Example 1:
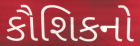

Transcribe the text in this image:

કૌશિકનો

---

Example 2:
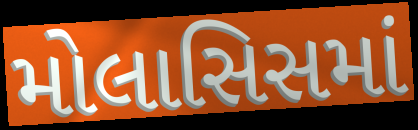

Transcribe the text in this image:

મોલાસિસમાં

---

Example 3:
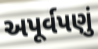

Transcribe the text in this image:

અપૂર્વપણું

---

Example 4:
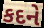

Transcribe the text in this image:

કદને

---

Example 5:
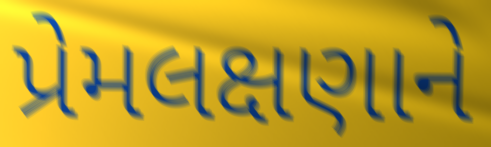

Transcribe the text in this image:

પ્રેમલક્ષણાને